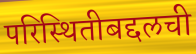
परिस्थितीबद्दलची